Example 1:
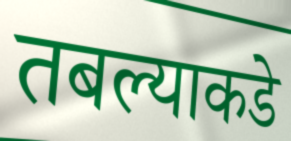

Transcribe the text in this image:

तबल्याकडे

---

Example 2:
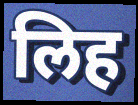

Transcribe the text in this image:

लिह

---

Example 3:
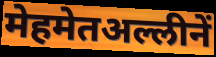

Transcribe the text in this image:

मेहमेतअल्लीनें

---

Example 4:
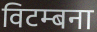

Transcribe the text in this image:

विटम्बना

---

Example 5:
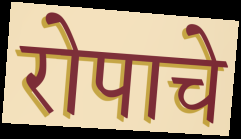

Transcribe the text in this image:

रोपाचे